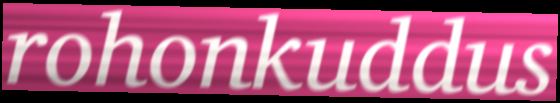
rohonkuddus